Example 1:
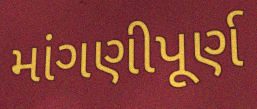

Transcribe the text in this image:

માંગણીપૂર્ણ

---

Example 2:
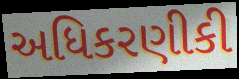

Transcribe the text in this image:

અધિકરણીકી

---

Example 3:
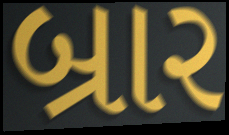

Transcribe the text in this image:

બ્રાર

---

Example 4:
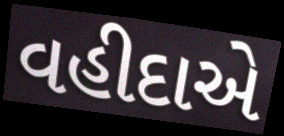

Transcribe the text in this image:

વહીદાએ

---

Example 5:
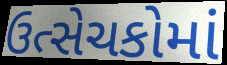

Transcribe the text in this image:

ઉત્સેચકોમાં